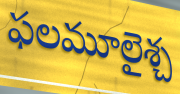
ఫలమూలైశ్చ